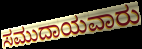
ಸಮುದಾಯವಾರು